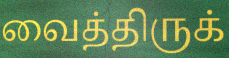
வைத்திருக்